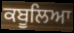
ਕਬੂਲਿਆ